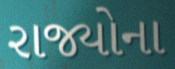
રાજ્યોના